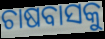
ଚାଷବାସକୁ